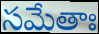
సమేతాః